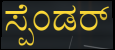
ಸ್ಪೆಂಡರ್